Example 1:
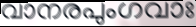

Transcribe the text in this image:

വാനരപുംഗവാഃ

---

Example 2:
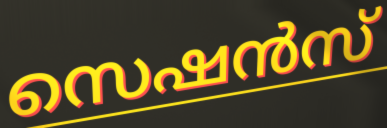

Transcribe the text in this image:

സെഷൻസ്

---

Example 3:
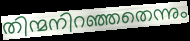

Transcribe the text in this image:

തിന്മനിറഞ്ഞതെന്നും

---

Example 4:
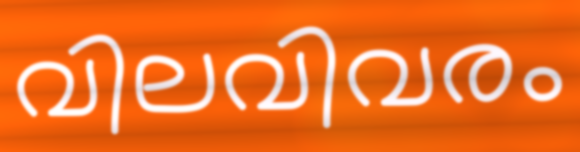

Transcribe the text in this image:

വിലവിവരം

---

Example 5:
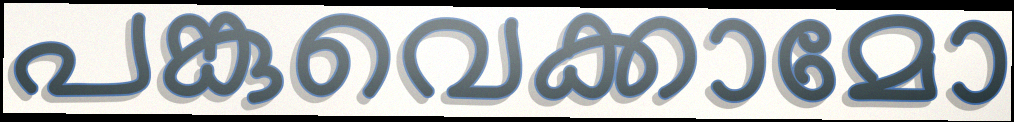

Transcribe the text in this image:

പങ്കുവെക്കാമോ